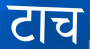
टाच